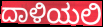
ದಾಳಿಯಲಿ